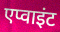
एप्वाइंट